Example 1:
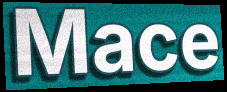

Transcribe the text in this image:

Mace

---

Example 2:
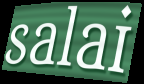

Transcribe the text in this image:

salai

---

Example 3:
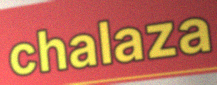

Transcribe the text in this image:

chalaza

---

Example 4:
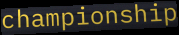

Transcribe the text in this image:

championship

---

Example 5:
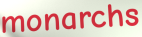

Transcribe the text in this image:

monarchs